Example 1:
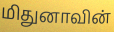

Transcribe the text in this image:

மிதுனாவின்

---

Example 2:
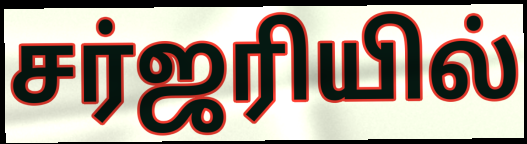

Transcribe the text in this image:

சர்ஜரியில்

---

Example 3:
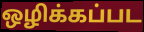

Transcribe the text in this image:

ஒழிக்கப்பட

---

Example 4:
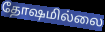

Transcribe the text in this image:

தோஷமில்லை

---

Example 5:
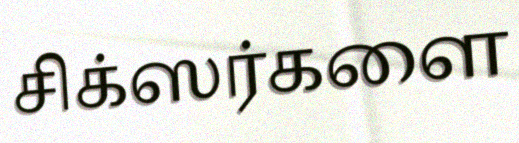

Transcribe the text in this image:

சிக்ஸர்களை